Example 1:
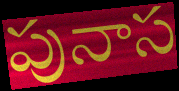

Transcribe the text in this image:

పునాస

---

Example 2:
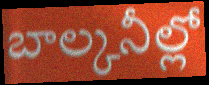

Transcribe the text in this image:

బాల్కనీల్లో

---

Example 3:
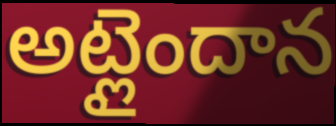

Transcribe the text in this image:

అట్లైందాన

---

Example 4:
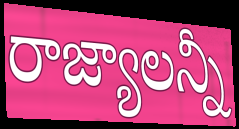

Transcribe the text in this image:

రాజ్యాలన్నీ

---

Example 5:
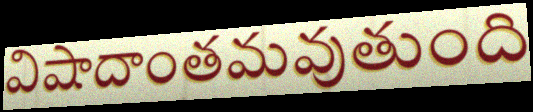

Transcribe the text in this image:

విషాదాంతమవుతుంది